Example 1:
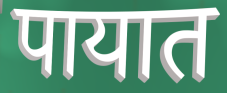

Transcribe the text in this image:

पायात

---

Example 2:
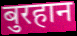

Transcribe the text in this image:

बुरहान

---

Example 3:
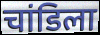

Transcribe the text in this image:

चांडिला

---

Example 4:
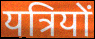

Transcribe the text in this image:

यत्रियों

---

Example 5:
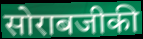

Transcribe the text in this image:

सोराबजीकी